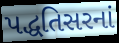
પદ્ધતિસરનાં